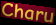
Charu